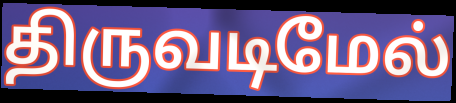
திருவடிமேல்